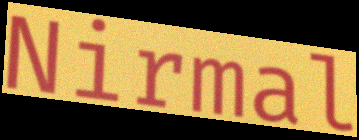
Nirmal